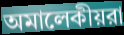
অমালেকীয়রা